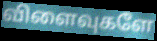
விளைவுகளே